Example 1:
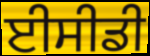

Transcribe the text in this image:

ਈਸੀਡੀ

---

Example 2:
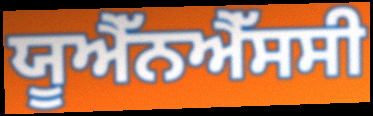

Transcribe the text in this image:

ਯੂਐੱਨਐੱਸਸੀ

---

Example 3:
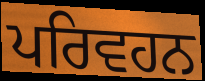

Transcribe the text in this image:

ਪਰਿਵਹਨ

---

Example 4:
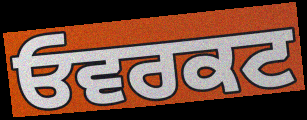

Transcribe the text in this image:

ਓਵਰਕਟ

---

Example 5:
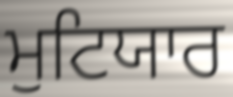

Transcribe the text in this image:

ਮੁਟਿਯਾਰ